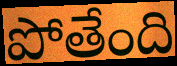
పోతేంది